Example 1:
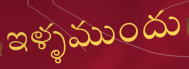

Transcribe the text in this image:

ఇళ్ళముందు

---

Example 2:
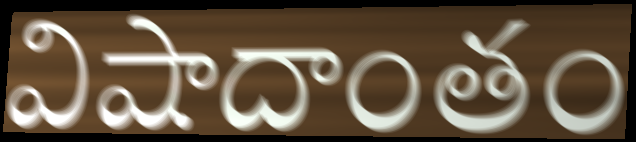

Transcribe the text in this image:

విషాదాంతం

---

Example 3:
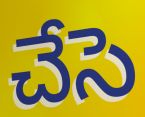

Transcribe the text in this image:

చేసె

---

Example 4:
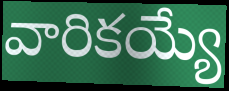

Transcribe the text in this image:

వారికయ్యే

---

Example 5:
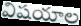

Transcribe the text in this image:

విషయాల